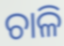
ଚାଳି